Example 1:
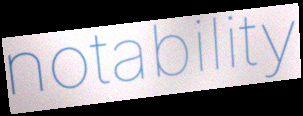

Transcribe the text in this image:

notability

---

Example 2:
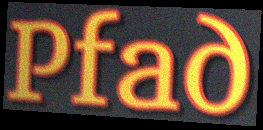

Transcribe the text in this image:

Pfad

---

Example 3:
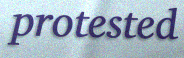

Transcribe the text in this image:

protested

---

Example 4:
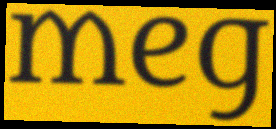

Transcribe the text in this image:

meg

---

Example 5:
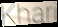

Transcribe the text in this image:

Khari